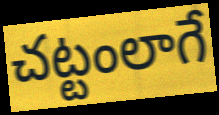
చట్టంలాగే